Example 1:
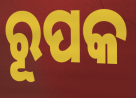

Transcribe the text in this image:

ରୂପକ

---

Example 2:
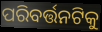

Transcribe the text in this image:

ପରିବର୍ତ୍ତନଟିକୁ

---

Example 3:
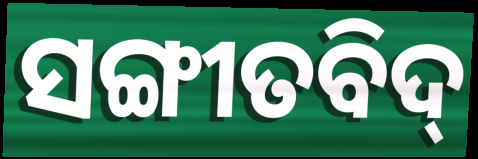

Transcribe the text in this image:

ସଙ୍ଗୀତବିଦ୍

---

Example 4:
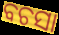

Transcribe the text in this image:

ବଚସା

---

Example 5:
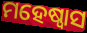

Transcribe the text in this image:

ମହେଷ୍ୱାସ